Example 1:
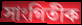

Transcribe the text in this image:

সাংগিতীক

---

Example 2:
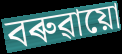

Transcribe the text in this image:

বৰুৱায়ো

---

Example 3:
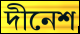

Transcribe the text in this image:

দীনেশ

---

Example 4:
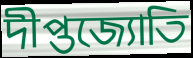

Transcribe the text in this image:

দীপ্তজ্যোতি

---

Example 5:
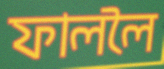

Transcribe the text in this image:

ফাললৈ